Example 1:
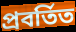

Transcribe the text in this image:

প্রবর্তিত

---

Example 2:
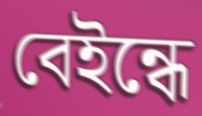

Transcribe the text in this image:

বেইন্ধে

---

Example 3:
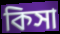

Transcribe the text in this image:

কিসা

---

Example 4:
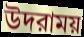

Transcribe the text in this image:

উদরাময়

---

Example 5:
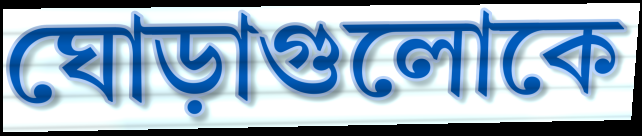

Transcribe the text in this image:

ঘোড়াগুলোকে